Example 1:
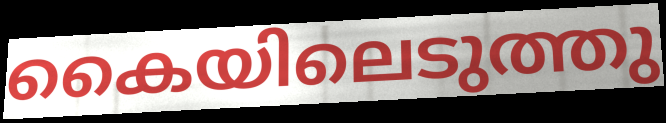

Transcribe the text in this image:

കൈയിലെടുത്തു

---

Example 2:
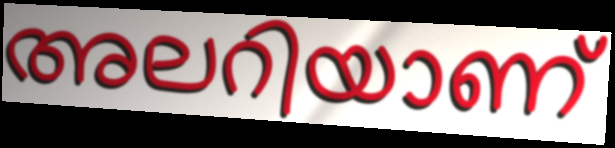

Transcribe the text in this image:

അലറിയാണ്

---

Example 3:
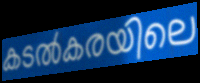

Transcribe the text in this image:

കടൽകരയിലെ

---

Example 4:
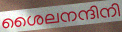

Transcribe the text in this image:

ശൈലനന്ദിനി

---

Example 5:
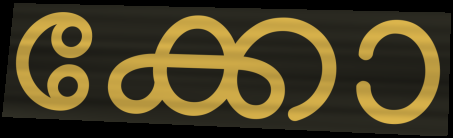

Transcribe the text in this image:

ക്കോ